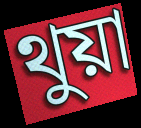
থুয়া